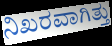
ನಿಖರವಾಗಿತ್ತು